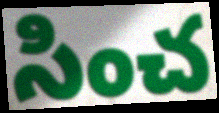
సించ